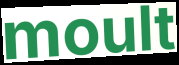
moult